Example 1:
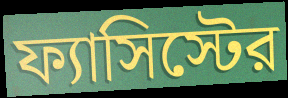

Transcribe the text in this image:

ফ্যাসিস্টের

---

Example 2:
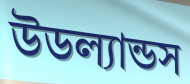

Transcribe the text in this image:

উডল্যান্ডস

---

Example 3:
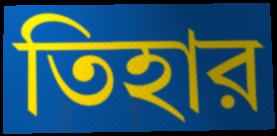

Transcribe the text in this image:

তিহার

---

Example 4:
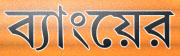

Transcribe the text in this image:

ব্যাংয়ের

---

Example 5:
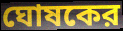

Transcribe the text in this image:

ঘোষকের